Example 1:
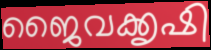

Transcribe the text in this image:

ജൈവക്കൃഷി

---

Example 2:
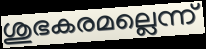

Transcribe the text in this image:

ശുഭകരമല്ലെന്ന്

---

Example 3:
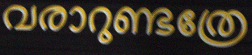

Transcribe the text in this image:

വരാറുണ്ടത്രേ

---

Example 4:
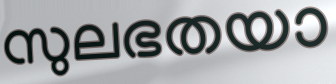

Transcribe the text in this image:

സുലഭതയാ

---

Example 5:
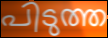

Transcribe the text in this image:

പിടുത്ത